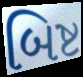
બિષ્ટ